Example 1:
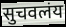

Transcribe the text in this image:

सुचवलंय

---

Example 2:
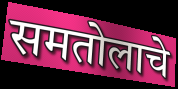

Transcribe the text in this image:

समतोलाचे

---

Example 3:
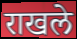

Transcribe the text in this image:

राखले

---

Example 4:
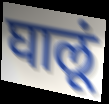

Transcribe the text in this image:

घालूं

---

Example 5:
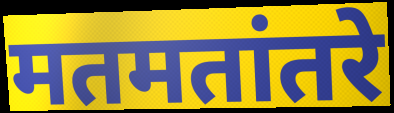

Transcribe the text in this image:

मतमतांतरे